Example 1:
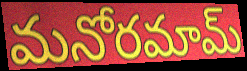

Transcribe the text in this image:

మనోరమామ్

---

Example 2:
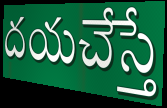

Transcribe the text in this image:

దయచేస్తే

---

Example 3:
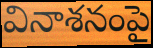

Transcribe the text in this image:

వినాశనంపై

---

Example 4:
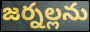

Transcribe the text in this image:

జర్నల్లను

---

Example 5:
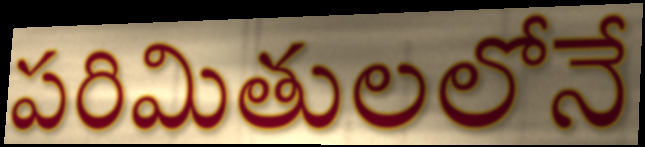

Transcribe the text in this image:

పరిమితులలోనే